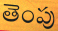
తెంపు